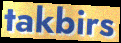
takbirs